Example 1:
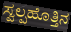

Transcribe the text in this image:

ಸ್ವಲ್ಪಹೊತ್ತಿನ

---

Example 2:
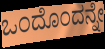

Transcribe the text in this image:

ಒಂದೊಂದನ್ನೇ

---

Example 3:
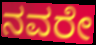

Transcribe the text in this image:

ನವರೇ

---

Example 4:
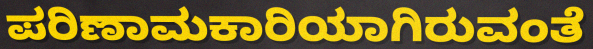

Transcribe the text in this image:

ಪರಿಣಾಮಕಾರಿಯಾಗಿರುವಂತೆ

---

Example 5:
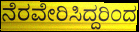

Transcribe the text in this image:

ನೆರವೇರಿಸಿದ್ದರಿಂದ